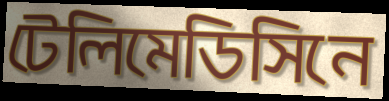
টেলিমেডিসিনে